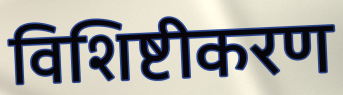
विशिष्टीकरण